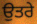
ਉਤਰੇ